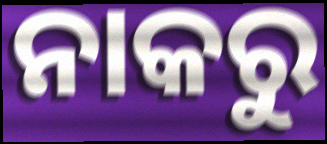
ନାକରୁ